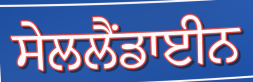
ਸੇਲਲੈਂਡਾਈਨ